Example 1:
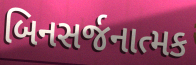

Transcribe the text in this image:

બિનસર્જનાત્મક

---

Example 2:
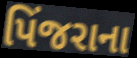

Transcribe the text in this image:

પિંજરાના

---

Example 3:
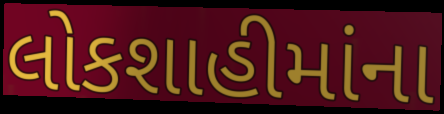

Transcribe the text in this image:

લોકશાહીમાંના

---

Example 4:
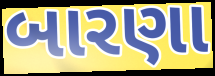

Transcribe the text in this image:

બારણા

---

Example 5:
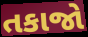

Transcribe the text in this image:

તકાજો